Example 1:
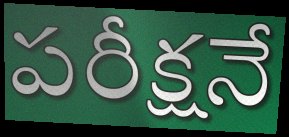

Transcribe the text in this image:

పరీక్షనే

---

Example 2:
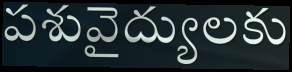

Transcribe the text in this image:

పశువైద్యులకు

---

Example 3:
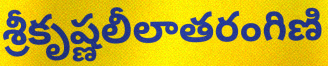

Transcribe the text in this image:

శ్రీకృష్ణలీలాతరంగిణి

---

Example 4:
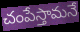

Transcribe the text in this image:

చంపేస్తామనే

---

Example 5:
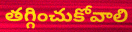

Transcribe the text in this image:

తగ్గించుకోవాలి